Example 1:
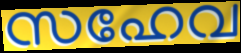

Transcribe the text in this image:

സഹേവ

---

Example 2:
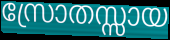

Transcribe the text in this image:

സ്രോതസ്സായ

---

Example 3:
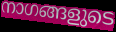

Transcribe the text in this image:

നാഗങ്ങളുടെ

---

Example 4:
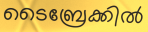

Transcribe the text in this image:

ടൈബ്രേക്കിൽ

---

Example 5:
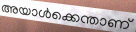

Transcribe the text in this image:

അയാൾക്കെന്താണ്